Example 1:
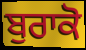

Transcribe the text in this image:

ਬੁਰਾਕੋ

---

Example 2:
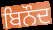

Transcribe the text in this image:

ਬਿਨੌਦ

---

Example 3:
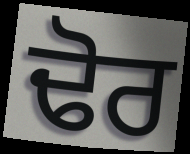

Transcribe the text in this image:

ਢੋਰ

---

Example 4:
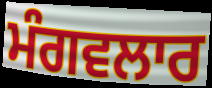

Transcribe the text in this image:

ਮੰਗਵਲਾਰ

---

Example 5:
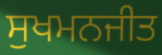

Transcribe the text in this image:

ਸੁਖਮਨਜੀਤ